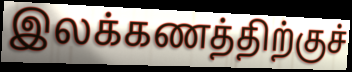
இலக்கணத்திற்குச்